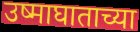
उष्माघाताच्या